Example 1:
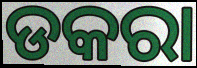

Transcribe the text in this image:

ଡକରା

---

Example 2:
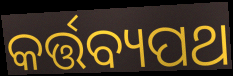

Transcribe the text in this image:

କର୍ତ୍ତବ୍ୟପଥ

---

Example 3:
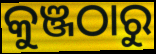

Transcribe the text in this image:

କୁଞ୍ଜଠାରୁ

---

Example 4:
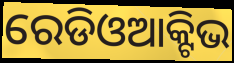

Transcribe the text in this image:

ରେଡିଓଆକ୍ଟିଭ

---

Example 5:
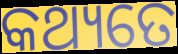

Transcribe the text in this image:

କଥ୍ୟତେ